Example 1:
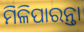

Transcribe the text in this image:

ମିଳିପାରନ୍ତା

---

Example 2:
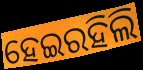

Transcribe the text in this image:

ହେଇରହିଲି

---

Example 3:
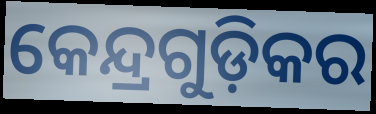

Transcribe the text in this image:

କେନ୍ଦ୍ରଗୁଡ଼ିକର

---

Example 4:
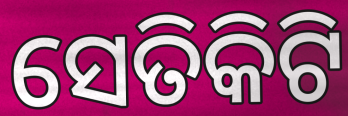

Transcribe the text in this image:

ସେତିକିଟି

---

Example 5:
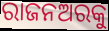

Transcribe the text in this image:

ରାଜନଅରକୁ